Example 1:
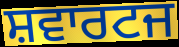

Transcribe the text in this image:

ਸ਼ਵਾਰਟਜ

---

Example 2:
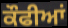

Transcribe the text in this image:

ਕੌਫੀਆਂ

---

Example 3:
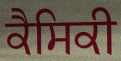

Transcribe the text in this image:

ਕੈਸਿਕੀ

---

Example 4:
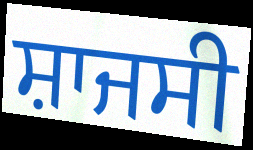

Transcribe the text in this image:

ਸ਼ਾਜਸੀ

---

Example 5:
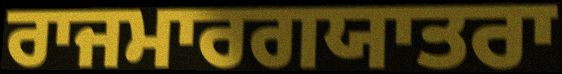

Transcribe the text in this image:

ਰਾਜਮਾਰਗਯਾਤਰਾ